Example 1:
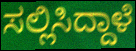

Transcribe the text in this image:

ಸಲ್ಲಿಸಿದ್ದಾಳೆ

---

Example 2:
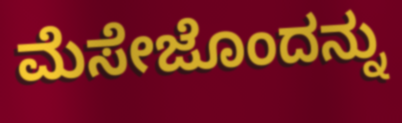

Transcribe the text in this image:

ಮೆಸೇಜೊಂದನ್ನು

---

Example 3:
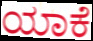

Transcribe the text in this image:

ಯಾಕೆ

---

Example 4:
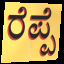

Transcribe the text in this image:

ರೆಪ್ಪೆ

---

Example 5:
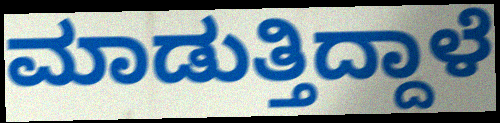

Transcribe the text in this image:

ಮಾಡುತ್ತಿದ್ದಾಳೆ